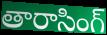
తారాసింగ్